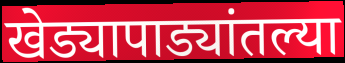
खेड्यापाड्यांतल्या